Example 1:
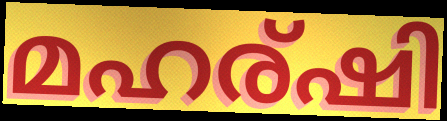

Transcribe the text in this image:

മഹര്ഷി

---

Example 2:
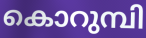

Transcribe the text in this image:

കൊറുമ്പി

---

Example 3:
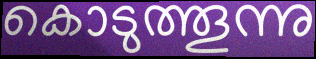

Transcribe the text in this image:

കൊടുത്തൂന്നു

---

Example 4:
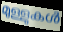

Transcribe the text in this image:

മുള്ളുകൾ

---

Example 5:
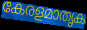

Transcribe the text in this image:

കേരളമാതൃക